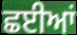
ਛਈਆਂ